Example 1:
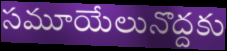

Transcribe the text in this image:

సమూయేలునొద్దకు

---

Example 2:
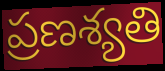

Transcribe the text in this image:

ప్రణశ్యతి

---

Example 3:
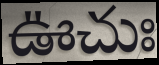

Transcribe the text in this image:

ఊచుః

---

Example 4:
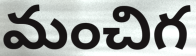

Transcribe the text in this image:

మంచిగ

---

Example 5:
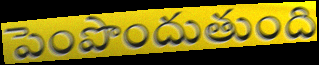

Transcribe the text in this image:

పెంపొందుతుంది